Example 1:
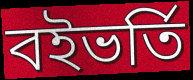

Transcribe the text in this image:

বইভর্তি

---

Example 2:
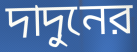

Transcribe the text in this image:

দাদুনের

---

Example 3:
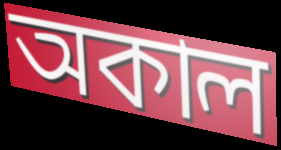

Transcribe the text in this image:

অকাল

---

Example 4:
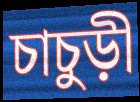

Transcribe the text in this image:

চাচুড়ী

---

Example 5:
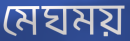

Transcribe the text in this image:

মেঘময়